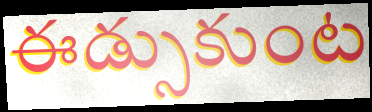
ఈడ్సుకుంట